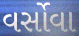
વર્સોવા